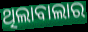
ଥିଲାବାଲାର